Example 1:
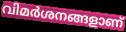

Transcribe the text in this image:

വിമർശനങ്ങളാണ്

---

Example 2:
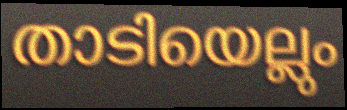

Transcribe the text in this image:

താടിയെല്ലും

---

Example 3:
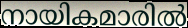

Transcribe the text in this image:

നായികമാരിൽ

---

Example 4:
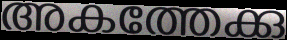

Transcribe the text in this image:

അകത്തേക്കു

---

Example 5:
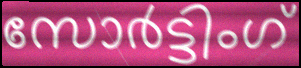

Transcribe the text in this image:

സോർട്ടിംഗ്